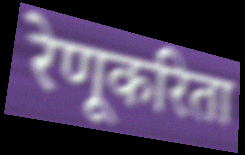
रेणूकरिता